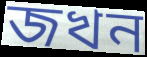
জখন